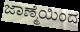
ಜಾಣ್ಮೆಯಿಂದ